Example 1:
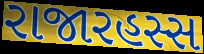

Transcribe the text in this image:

રાજારહસ્સ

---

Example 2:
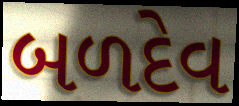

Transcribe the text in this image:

બળદેવ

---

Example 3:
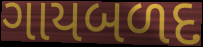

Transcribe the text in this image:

ગાયબળદ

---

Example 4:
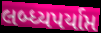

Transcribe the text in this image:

લબ્ધ્યપર્યાપ્ત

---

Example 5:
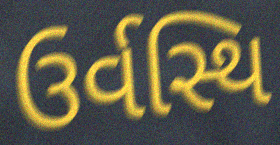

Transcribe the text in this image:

ઉર્વસ્થિ